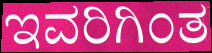
ಇವರಿಗಿಂತ